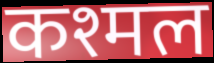
कश्मल